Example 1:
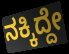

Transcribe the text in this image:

ನಕ್ಕಿದ್ದೇ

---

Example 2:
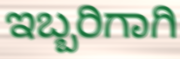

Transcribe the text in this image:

ಇಬ್ಬರಿಗಾಗಿ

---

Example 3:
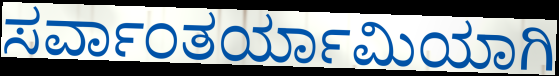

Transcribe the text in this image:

ಸರ್ವಾಂತರ್ಯಾಮಿಯಾಗಿ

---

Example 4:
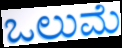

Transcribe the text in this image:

ಒಲುಮೆ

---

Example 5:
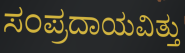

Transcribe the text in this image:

ಸಂಪ್ರದಾಯವಿತ್ತು